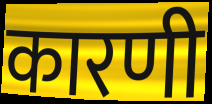
कारणी